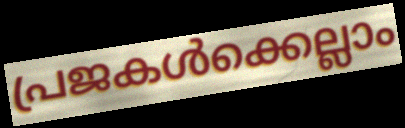
പ്രജകൾക്കെല്ലാം